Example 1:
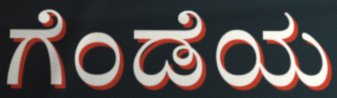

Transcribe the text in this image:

ಗೆಂಡೆಯ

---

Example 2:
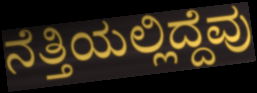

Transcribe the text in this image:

ನೆತ್ತಿಯಲ್ಲಿದ್ದೆವು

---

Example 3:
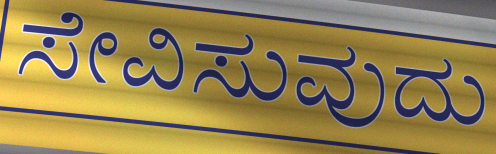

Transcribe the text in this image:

ಸೇವಿಸುವುದು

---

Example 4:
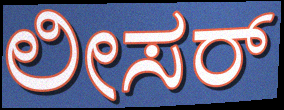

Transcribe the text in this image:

ಲೀಸರ್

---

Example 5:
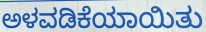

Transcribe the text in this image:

ಅಳವಡಿಕೆಯಾಯಿತು